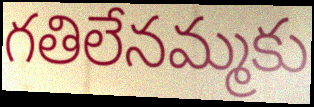
గతిలేనమ్మకు